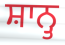
ਸ਼ਾਨ੍ਤ